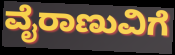
ವೈರಾಣುವಿಗೆ